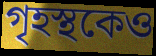
গৃহস্থকেও